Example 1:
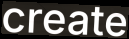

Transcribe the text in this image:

create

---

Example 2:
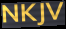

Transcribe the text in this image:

NKJV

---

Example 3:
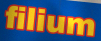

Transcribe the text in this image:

filium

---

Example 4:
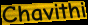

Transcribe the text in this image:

Chavithi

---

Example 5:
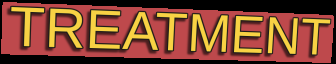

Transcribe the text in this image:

TREATMENT